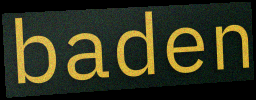
baden